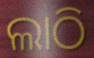
ଲାଠି